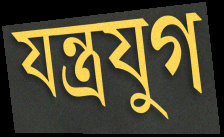
যন্ত্রযুগ